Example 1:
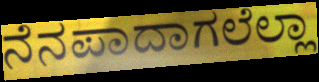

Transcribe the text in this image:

ನೆನಪಾದಾಗಲೆಲ್ಲಾ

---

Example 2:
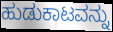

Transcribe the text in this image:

ಹುಡುಕಾಟವನ್ನು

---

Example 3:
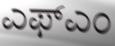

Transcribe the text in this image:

ಎಫ್ಎಂ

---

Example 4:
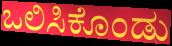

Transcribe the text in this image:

ಒಲಿಸಿಕೊಂಡು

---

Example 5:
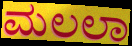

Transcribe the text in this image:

ಮಲಲಾ